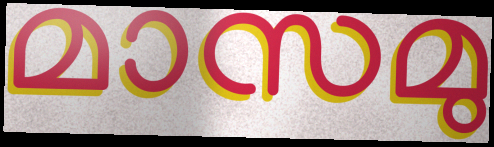
മാസമു